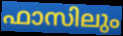
ഫാസിലും